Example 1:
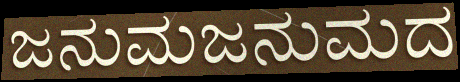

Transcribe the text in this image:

ಜನುಮಜನುಮದ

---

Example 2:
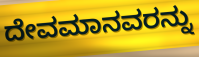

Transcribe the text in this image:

ದೇವಮಾನವರನ್ನು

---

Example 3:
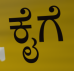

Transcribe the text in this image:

ಕೈಗೆ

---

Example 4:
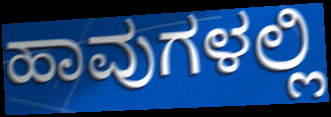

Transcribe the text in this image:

ಹಾವುಗಳಲ್ಲಿ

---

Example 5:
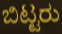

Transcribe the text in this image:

ಬಿಟ್ಟರು